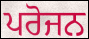
ਪਰੋਜਨ